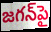
జగన్‌పై